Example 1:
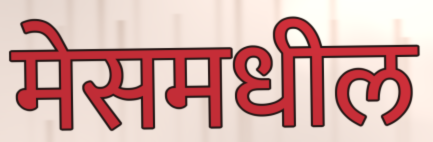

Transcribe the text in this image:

मेसमधील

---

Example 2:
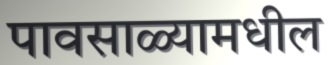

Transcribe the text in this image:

पावसाळ्यामधील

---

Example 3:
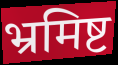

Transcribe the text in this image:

भ्रमिष्ट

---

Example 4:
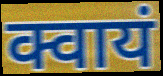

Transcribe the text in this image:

क्वायं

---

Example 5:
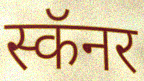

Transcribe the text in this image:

स्कॅनर